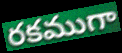
రకముగా